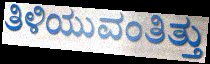
ತಿಳಿಯುವಂತಿತ್ತು